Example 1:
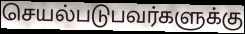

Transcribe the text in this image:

செயல்படுபவர்களுக்கு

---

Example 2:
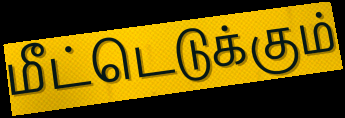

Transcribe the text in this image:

மீட்டெடுக்கும்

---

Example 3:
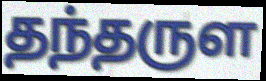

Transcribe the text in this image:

தந்தருள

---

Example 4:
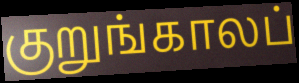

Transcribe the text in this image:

குறுங்காலப்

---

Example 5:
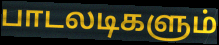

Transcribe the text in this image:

பாடலடிகளும்